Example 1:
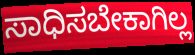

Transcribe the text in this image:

ಸಾಧಿಸಬೇಕಾಗಿಲ್ಲ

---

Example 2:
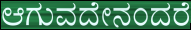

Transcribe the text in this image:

ಆಗುವದೇನಂದರೆ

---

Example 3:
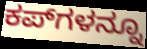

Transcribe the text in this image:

ಕಪ್‌ಗಳನ್ನೂ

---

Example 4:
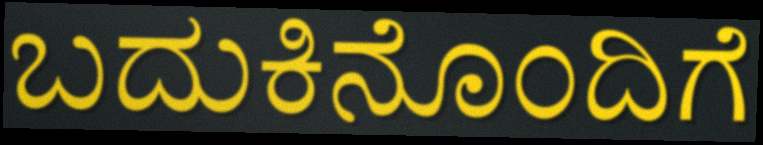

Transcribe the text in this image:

ಬದುಕಿನೊಂದಿಗೆ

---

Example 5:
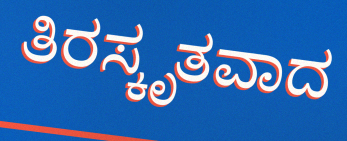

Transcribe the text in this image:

ತಿರಸ್ಕೃತವಾದ